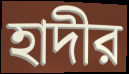
হাদীর